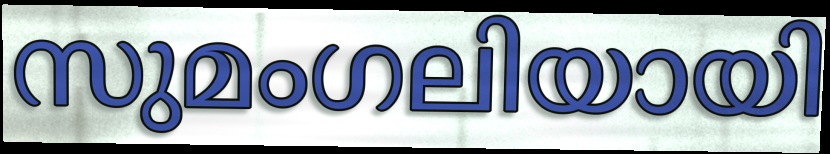
സുമംഗലിയായി